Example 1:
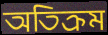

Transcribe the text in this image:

অতিক্ৰম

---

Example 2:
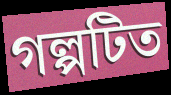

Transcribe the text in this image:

গল্পটিত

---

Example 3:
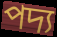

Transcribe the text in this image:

পদ্য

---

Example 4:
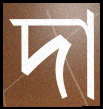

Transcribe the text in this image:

দা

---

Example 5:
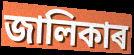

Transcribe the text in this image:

জালিকাৰ